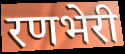
रणभेरी